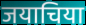
जयाचिया